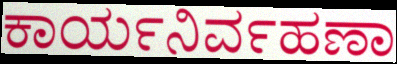
ಕಾರ್ಯನಿರ್ವಹಣಾ